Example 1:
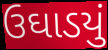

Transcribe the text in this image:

ઉઘાડયું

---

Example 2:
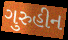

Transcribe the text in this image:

ગુરુહીન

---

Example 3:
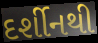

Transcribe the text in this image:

દર્શીનથી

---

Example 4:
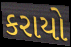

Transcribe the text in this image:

કરાયો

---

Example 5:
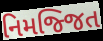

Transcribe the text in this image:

નિમજ્જિત